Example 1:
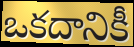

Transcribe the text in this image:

ఒకదానికీ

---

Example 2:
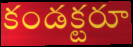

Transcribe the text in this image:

కండక్టరూ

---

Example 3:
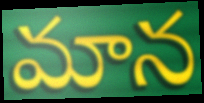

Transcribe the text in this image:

మాన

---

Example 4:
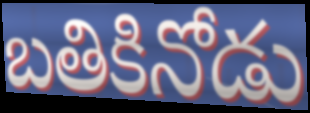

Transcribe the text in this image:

బతికినోడు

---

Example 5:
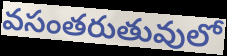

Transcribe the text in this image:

వసంతరుతువులో